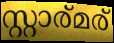
സ്റ്റാര്മര്